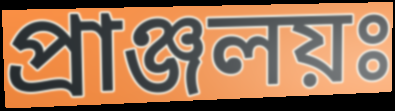
প্রাঞ্জলয়ঃ